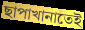
ছাপাখানাতেই